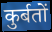
कुर्बतों